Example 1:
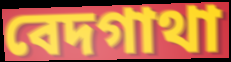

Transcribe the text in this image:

বেদগাথা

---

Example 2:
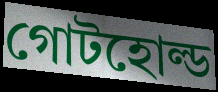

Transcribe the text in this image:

গোটহোল্ড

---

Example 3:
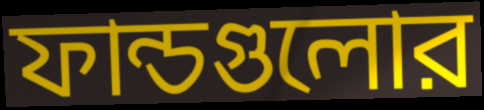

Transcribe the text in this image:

ফান্ডগুলোর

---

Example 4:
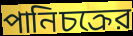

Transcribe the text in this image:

পানিচক্রের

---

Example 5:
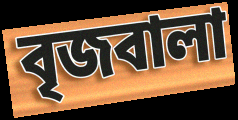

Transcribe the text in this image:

বৃজবালা